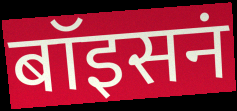
बॉइसनं